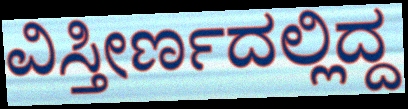
ವಿಸ್ತೀರ್ಣದಲ್ಲಿದ್ದ